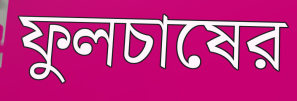
ফুলচাষের